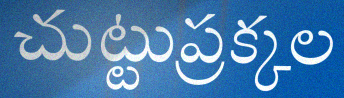
చుట్టుప్రక్కల